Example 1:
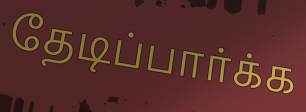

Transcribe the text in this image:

தேடிப்பார்க்க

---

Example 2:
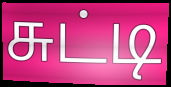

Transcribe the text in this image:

சுட்டி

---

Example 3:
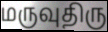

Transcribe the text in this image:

மருவுதிரு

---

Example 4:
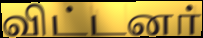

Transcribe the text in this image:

விட்டனர்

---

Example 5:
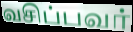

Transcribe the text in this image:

வசிப்பவர்